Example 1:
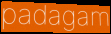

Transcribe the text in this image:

padagam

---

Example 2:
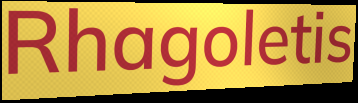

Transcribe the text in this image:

Rhagoletis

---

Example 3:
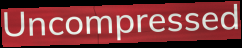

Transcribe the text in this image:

Uncompressed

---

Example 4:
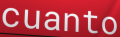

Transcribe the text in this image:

cuanto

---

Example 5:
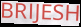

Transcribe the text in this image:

BRIJESH